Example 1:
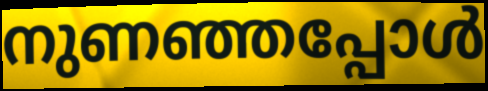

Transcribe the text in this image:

നുണഞ്ഞപ്പോൾ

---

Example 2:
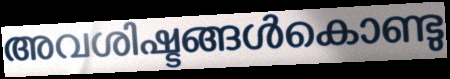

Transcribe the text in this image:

അവശിഷ്ടങ്ങൾകൊണ്ടു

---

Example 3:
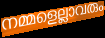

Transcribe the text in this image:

നമ്മളെല്ലാവരും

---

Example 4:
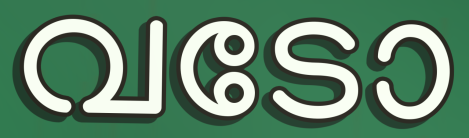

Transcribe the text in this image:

വടോ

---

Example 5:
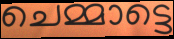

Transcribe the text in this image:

ചെമ്മാട്ടെ